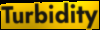
Turbidity